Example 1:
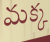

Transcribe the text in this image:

మక్క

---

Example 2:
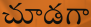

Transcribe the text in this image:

చూడగా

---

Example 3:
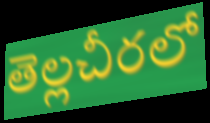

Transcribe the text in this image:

తెల్లచీరలో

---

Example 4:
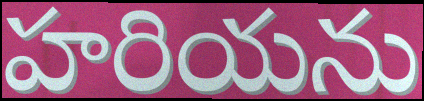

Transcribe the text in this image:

హరియను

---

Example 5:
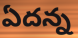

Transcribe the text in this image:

ఏదన్న